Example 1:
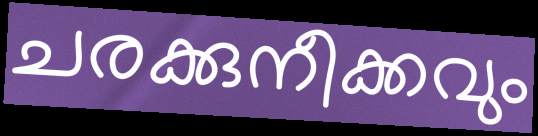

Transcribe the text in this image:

ചരക്കുനീക്കവും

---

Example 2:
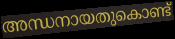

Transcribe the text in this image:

അന്ധനായതുകൊണ്ട്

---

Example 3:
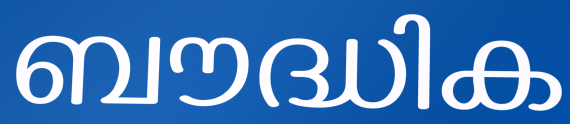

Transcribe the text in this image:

ബൗദ്ധിക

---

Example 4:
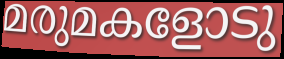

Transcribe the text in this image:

മരുമകളോടു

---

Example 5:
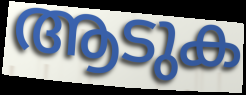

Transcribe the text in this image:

ആടുക